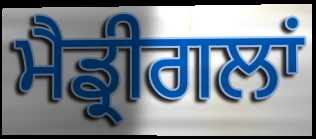
ਮੈਡ੍ਰੀਗਲਾਂ